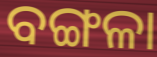
ବଙ୍ଗଳା